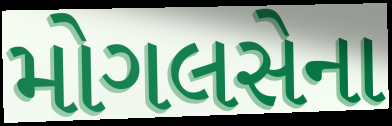
મોગલસેના